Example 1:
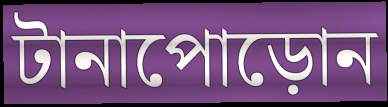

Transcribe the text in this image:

টানাপোড়োন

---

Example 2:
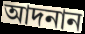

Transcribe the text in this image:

আদনান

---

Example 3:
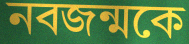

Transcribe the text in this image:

নবজন্মকে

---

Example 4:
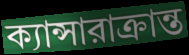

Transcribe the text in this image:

ক্যান্সারাক্রান্ত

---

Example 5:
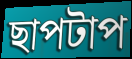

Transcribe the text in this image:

ছাপটাপ